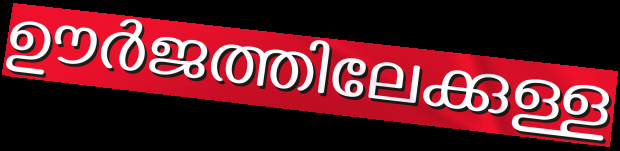
ഊർജത്തിലേക്കുള്ള